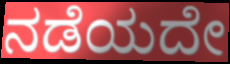
ನಡೆಯದೇ